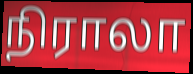
நிராலா